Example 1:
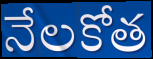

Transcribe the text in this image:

నేలకోత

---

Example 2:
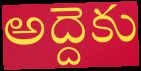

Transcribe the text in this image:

అద్దెకు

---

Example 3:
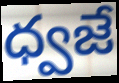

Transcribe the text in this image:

ధ్వజే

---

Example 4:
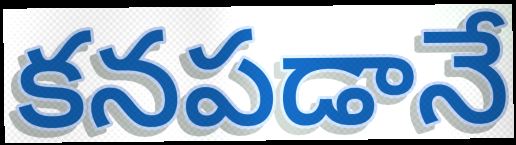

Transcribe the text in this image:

కనపడానే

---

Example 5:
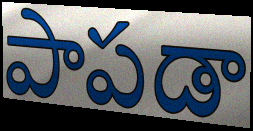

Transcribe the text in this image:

పాపడా